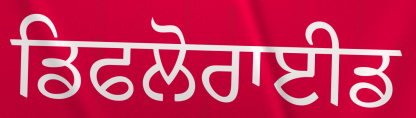
ਡਿਫਲੋਰਾਈਡ